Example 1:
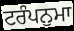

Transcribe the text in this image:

ਟਰੰਪਨੁਮਾ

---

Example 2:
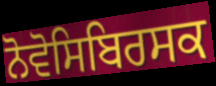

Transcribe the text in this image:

ਨੋਵੋਸਿਬਿਰਸਕ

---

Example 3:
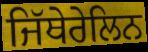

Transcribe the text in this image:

ਜਿੱਥੇਰੇਲਿਨ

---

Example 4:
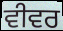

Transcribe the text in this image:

ਵੀਵਰ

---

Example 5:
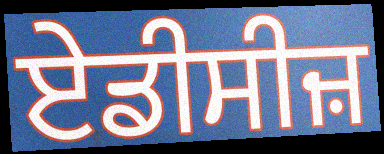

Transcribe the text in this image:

ਏਡੀਸੀਜ਼